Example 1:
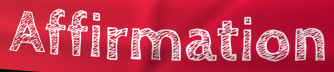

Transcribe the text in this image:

Affirmation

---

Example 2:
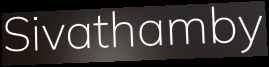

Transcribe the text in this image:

Sivathamby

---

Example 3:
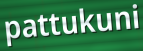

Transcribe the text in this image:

pattukuni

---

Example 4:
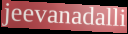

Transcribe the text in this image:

jeevanadalli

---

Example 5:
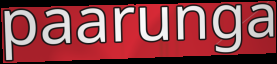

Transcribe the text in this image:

paarunga